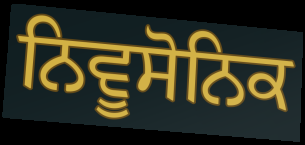
ਨਿਵੂਸੋਨਿਕ